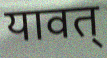
यावत्